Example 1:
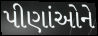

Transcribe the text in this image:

પીણાંઓને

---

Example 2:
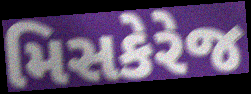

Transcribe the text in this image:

મિસકેરેજ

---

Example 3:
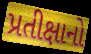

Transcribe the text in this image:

પ્રતીક્ષાનો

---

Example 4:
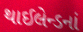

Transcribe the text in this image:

થાઈલેન્ડનાં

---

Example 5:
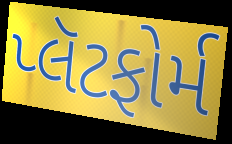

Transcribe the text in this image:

પ્લૅટફોર્મ